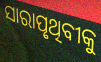
ସାରାପୃଥିବୀକୁ